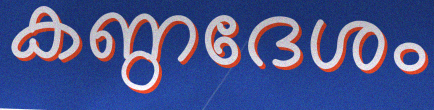
കണ്ഠദേശം